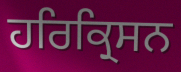
ਹਰਿਕ੍ਰਿਸਨ